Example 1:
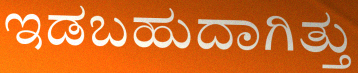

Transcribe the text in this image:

ಇಡಬಹುದಾಗಿತ್ತು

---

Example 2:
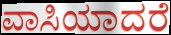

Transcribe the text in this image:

ವಾಸಿಯಾದರೆ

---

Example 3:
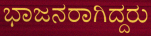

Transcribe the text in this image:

ಭಾಜನರಾಗಿದ್ದರು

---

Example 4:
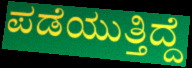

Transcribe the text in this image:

ಪಡೆಯುತ್ತಿದ್ದೆ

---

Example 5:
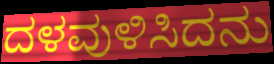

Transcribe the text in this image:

ದಳವುಳಿಸಿದನು